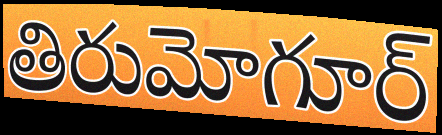
తిరుమోగూర్